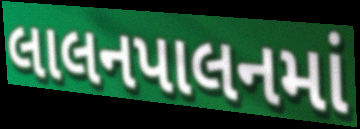
લાલનપાલનમાં